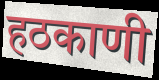
हठकाणी